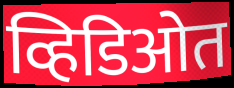
व्हिडिओत